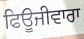
ਫਿਊਜੀਵਾਰਾ